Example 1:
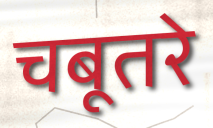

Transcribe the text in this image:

चबूतरे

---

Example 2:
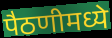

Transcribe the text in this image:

पैठणीमध्ये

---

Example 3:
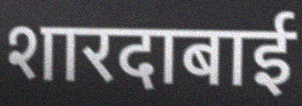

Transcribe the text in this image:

शारदाबाई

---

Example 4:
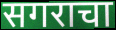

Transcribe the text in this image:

सगराचा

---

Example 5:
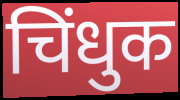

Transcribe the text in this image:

चिंधुक